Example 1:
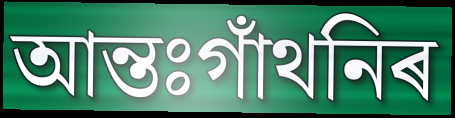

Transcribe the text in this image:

আন্তঃগাঁথনিৰ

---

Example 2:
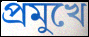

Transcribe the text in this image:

প্ৰমুখে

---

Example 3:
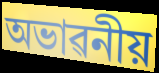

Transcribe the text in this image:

অভাৱনীয়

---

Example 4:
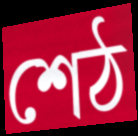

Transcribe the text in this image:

শেঠ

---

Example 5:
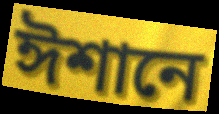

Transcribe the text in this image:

ঈশানে